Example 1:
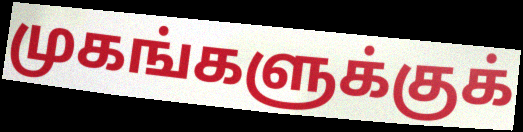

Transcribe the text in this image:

முகங்களுக்குக்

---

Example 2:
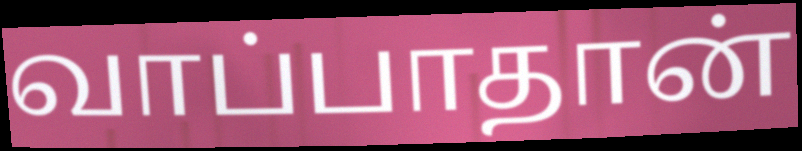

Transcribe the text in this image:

வாப்பாதான்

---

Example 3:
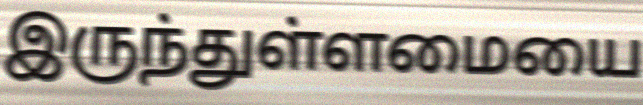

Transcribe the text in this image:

இருந்துள்ளமையை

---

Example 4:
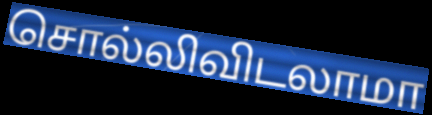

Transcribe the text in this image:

சொல்லிவிடலாமா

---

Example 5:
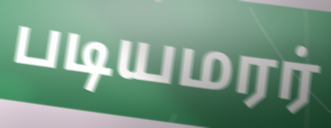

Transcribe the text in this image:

படியமரர்